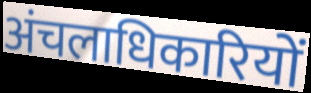
अंचलाधिकारियों